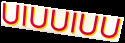
UIUUIUU